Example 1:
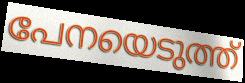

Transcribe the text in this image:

പേനയെടുത്ത്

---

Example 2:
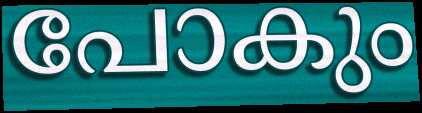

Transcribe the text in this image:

പോകും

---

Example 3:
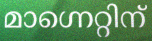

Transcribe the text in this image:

മാഗ്നെറ്റിന്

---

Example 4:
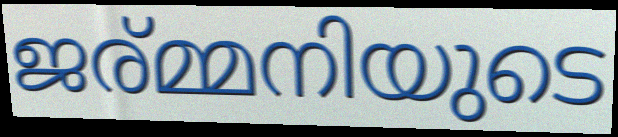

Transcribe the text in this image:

ജര്മ്മനിയുടെ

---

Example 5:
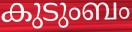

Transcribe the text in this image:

കുടുംബം